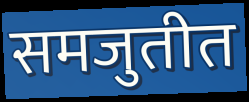
समजुतीत